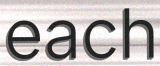
each